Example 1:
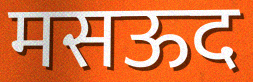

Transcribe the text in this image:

मसऊद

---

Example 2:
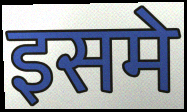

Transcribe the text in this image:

इसमे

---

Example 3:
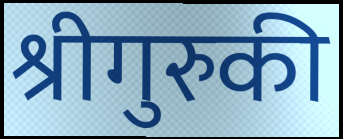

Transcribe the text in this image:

श्रीगुरुकी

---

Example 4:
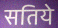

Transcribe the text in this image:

सतिये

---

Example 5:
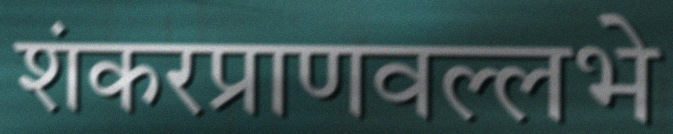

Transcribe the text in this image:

शंकरप्राणवल्लभे